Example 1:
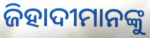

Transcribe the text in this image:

ଜିହାଦୀମାନଙ୍କୁ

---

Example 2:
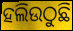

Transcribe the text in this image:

ହଲିଉଠୁଛି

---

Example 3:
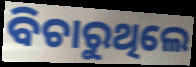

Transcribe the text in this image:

ବିଚାରୁଥିଲେ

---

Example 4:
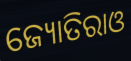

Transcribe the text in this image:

ଜ୍ୟୋତିରାଓ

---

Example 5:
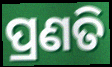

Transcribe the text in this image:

ପ୍ରଣତି